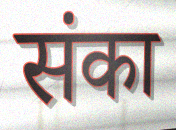
संका